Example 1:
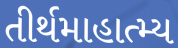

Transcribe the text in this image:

તીર્થમાહાત્મ્ય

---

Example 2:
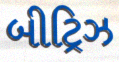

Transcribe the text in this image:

બીટ્રિઝ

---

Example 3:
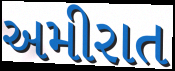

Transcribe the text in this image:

અમીરાત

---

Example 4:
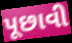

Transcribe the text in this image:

પૂછાવી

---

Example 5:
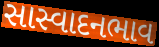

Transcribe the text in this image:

સાસ્વાદનભાવ